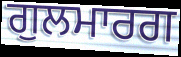
ਗੁਲਮਾਰਗ